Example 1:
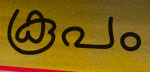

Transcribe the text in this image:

കൂപം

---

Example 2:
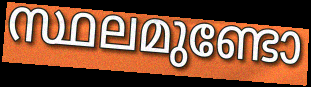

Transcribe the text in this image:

സ്ഥലമുണ്ടോ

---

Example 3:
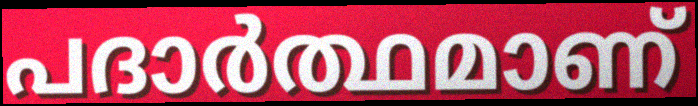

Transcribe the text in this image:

പദാർത്ഥമാണ്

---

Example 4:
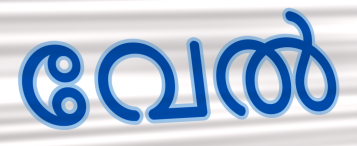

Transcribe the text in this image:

വേൽ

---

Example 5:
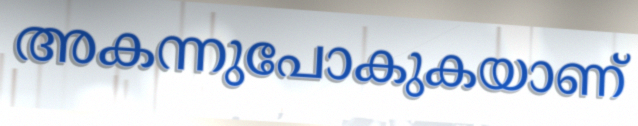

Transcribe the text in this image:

അകന്നുപോകുകയാണ്